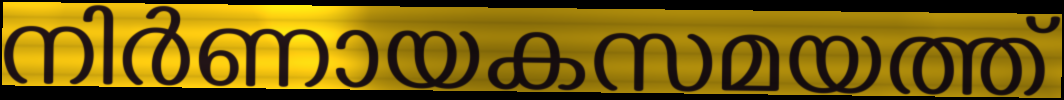
നിർണായകസമയത്ത്